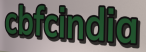
cbfcindia